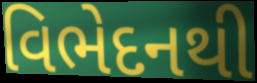
વિભેદનથી